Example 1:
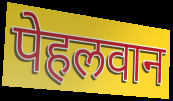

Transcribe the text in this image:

पेहलवान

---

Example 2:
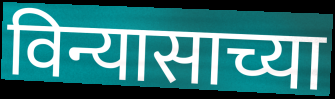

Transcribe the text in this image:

विन्यासाच्या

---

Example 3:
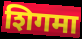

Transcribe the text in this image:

शिगमा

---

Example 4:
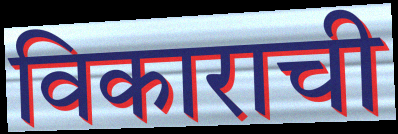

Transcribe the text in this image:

विकाराची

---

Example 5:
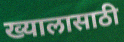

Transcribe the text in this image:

ख्यालासाठी